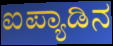
ಐಪ್ಯಾಡಿನ